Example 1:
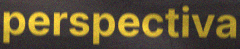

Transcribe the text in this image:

perspectiva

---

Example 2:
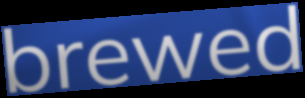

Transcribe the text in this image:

brewed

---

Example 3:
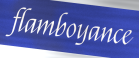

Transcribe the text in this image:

flamboyance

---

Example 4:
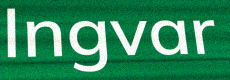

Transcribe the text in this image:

Ingvar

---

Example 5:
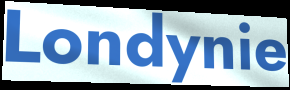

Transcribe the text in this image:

Londynie